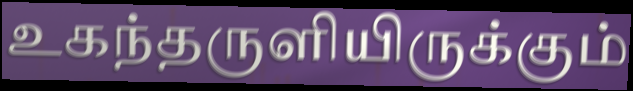
உகந்தருளியிருக்கும்